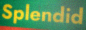
Splendid